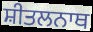
ਸ਼ੀਤਲਨਾਥ